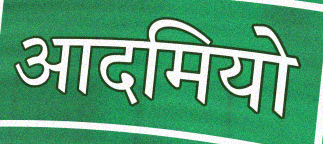
आदमियो